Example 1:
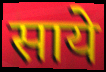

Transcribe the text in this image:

साये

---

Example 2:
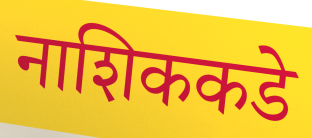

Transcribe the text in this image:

नाशिककडे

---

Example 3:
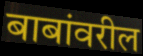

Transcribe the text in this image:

बाबांवरील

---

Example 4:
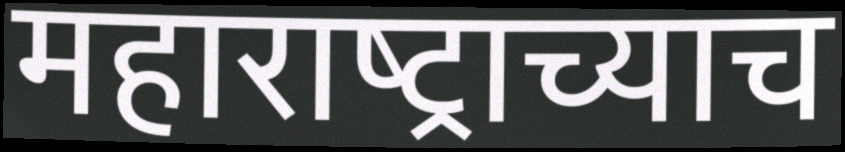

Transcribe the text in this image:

महाराष्ट्राच्याच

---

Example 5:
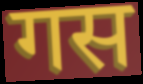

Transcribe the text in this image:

गस